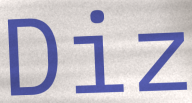
Diz